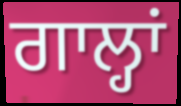
ਗਾਲ੍ਹਾਂ